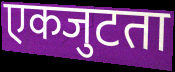
एकजुटता